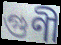
গুণী